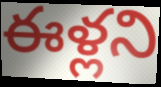
ఈళ్లని